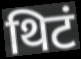
थिटं